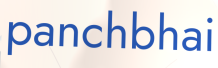
panchbhai